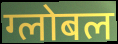
ग्लोबल